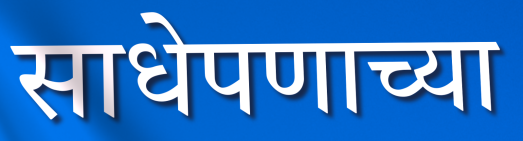
साधेपणाच्या